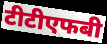
टीटीएफबी